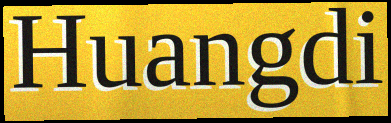
Huangdi